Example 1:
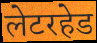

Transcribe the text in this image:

लेटरहेड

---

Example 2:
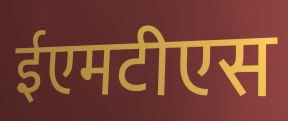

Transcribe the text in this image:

ईएमटीएस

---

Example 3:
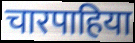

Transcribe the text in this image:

चारपाहिया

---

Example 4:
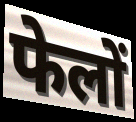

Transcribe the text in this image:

फेलों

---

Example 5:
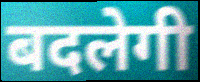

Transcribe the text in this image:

बदलेगी